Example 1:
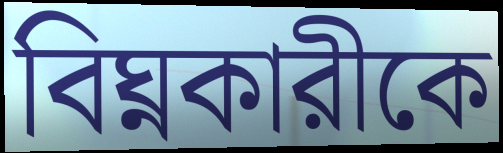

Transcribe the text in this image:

বিঘ্নকারীকে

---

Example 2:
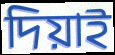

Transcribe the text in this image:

দিয়াই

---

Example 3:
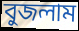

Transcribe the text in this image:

বুজলাম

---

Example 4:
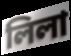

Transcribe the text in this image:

লিলা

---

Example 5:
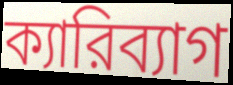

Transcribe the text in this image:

ক্যারিব্যাগ